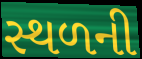
સ્થળની